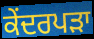
ਕੇਂਦਰਪੜਾ